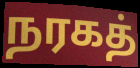
நரகத்